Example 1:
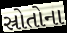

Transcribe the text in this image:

સ્રોતોના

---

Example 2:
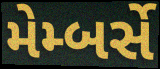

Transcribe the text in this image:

મેમ્બર્સે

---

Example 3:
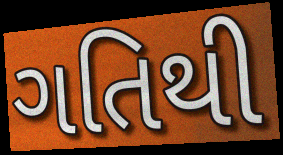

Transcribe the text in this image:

ગતિથી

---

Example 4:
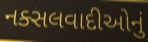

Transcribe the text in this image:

નક્સલવાદીઓનું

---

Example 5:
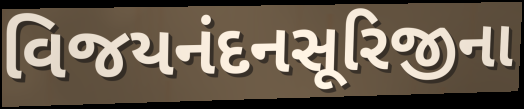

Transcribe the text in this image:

વિજયનંદનસૂરિજીના